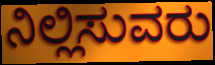
ನಿಲ್ಲಿಸುವರು